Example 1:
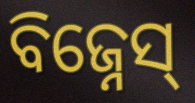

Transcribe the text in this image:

ବିଜ୍ନେସ୍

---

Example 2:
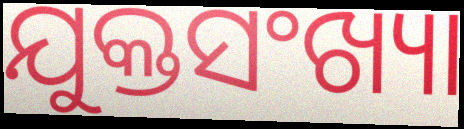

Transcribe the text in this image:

ଯୁକ୍ତସଂଖ୍ୟା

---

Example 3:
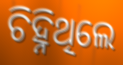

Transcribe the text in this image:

ଚିହ୍ନିଥିଲେ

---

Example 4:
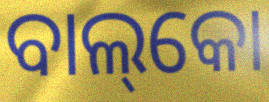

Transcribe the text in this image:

ବାଲ୍‌କୋ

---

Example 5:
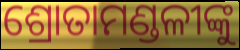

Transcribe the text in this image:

ଶ୍ରୋତାମଣ୍ଡଳୀଙ୍କୁ